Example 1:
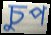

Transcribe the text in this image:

চুপ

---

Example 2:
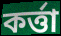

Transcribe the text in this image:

কৰ্ত্তা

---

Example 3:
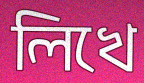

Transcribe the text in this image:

লিখে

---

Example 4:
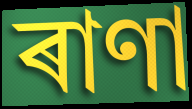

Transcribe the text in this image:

ৰাণা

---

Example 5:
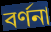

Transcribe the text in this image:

বৰ্ণনা